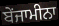
ਬੇਂਜਾਮੀਨਾ